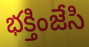
భక్తింజేసి